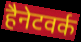
हैनेटवर्क